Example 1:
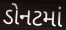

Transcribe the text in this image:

ડોનટમાં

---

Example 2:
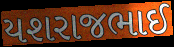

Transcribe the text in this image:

યશરાજભાઈ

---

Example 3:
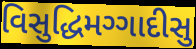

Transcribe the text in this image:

વિસુદ્ધિમગ્ગાદીસુ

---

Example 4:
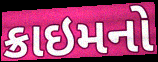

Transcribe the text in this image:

ક્રાઇમનો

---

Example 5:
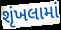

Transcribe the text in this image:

શૃંખલામાં